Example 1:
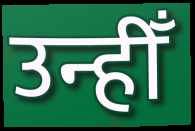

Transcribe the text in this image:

उन्हीँ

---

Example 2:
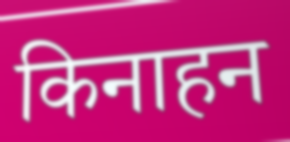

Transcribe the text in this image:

किनाहन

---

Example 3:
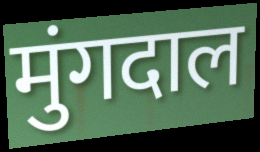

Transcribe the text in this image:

मुंगदाल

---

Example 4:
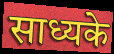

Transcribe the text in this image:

साध्यके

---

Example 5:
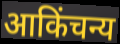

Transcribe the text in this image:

आकिंचन्य